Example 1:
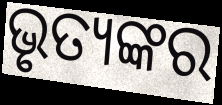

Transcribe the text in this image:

ଭୃତ୍ୟଙ୍କର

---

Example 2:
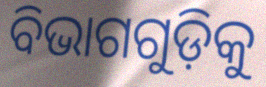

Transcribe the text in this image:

ବିଭାଗଗୁଡ଼ିକୁ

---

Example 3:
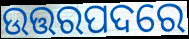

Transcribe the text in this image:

ଉତ୍ତରପଦରେ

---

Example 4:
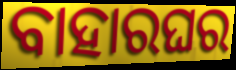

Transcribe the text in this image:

ବାହାରଘର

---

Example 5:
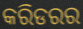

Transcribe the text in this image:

କରିଡରର